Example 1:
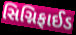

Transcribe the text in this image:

સિગ્નિફાઈડ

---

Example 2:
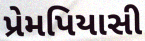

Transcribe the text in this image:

પ્રેમપિયાસી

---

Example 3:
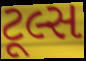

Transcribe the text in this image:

ટૂલ્સ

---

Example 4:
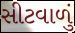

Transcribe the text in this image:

સીટવાળું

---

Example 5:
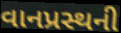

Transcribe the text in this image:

વાનપ્રસ્થની